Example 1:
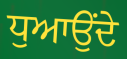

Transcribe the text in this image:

ਧੁਆਉਂਦੇ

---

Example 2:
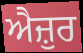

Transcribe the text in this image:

ਐਜ਼ੁਰ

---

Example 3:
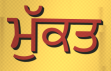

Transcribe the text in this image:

ਮੁੱਕਤ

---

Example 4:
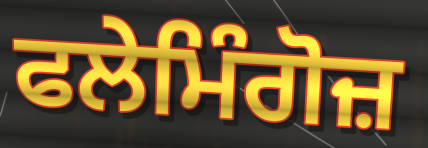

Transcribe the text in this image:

ਫਲੇਮਿੰਗੋਜ਼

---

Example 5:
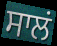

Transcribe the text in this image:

ਸਾਲਂ